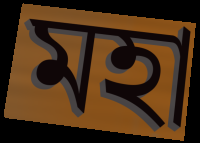
মহা